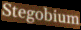
Stegobium